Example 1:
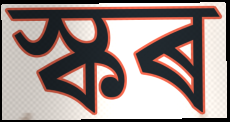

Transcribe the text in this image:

স্কৰ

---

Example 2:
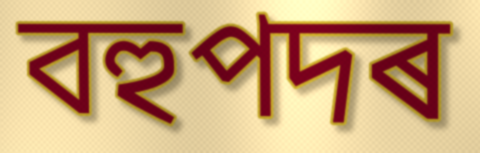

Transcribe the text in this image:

বহুপদৰ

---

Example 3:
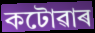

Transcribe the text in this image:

কটোৱাৰ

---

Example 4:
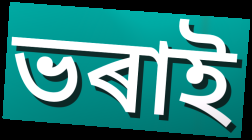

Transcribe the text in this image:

ভৰাই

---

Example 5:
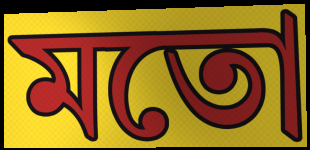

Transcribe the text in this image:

মতো